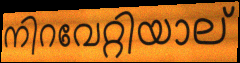
നിറവേറ്റിയാല്